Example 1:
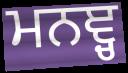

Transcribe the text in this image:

ਮਨਞ੍ਚ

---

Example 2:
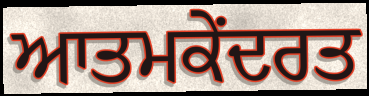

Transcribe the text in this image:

ਆਤਮਕੇਂਦਰਤ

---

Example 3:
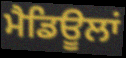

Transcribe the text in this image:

ਮੈਡਿਊਲਾਂ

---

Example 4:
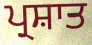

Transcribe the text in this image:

ਪ੍ਰਸ਼ਾਤ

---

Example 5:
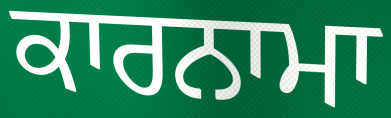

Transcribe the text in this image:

ਕਾਰਨਾਮਾ